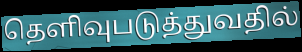
தெளிவுபடுத்துவதில்